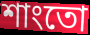
শাংতো